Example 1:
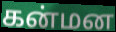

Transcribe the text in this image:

கன்மன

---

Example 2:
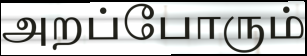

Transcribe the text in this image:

அறப்போரும்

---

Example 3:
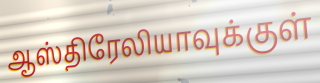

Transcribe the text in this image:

ஆஸ்திரேலியாவுக்குள்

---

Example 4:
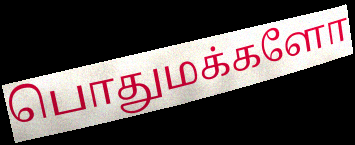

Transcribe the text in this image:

பொதுமக்களோ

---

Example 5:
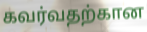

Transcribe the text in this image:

கவர்வதற்கான